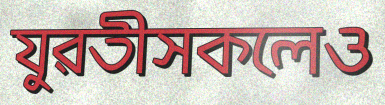
যুৱতীসকলেও